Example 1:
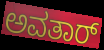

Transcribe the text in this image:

ಅವತಾರ್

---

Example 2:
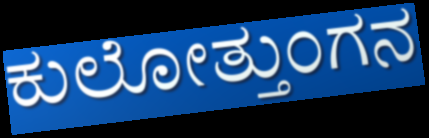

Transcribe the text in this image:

ಕುಲೋತ್ತುಂಗನ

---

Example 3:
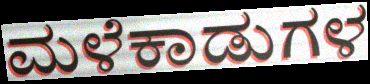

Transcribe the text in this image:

ಮಳೆಕಾಡುಗಳ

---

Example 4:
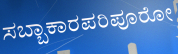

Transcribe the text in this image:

ಸಬ್ಬಾಕಾರಪರಿಪೂರೋ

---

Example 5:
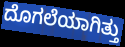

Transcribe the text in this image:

ದೊಗಲೆಯಾಗಿತ್ತು